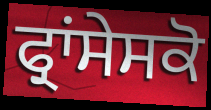
ਫ੍ਰਾਂਸੇਸਕੋ